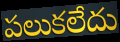
పలుకలేదు